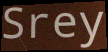
Srey